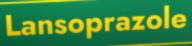
Lansoprazole